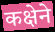
कक्षेने